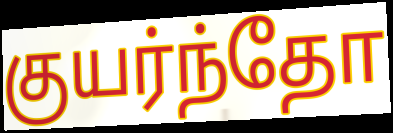
குயர்ந்தோ